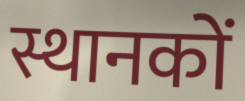
स्थानकों